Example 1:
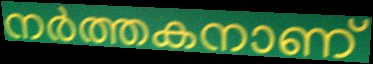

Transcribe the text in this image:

നർത്തകനാണ്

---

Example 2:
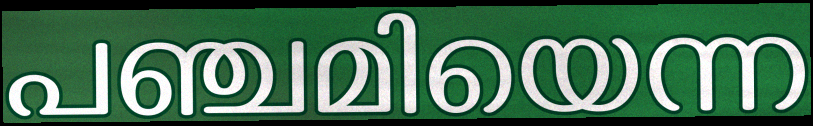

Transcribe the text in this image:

പഞ്ചമിയെന്ന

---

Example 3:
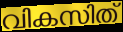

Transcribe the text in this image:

വികസിത്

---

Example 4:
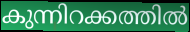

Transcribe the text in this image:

കുന്നിറക്കത്തിൽ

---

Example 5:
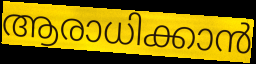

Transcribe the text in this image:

ആരാധിക്കാൻ